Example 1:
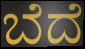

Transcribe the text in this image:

ಬೆದೆ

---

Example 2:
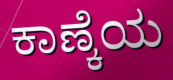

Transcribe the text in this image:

ಕಾಣ್ಕೆಯ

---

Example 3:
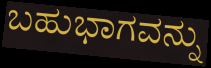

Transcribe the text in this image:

ಬಹುಭಾಗವನ್ನು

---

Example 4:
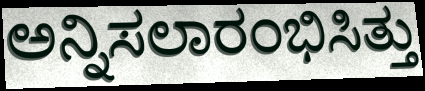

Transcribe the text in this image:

ಅನ್ನಿಸಲಾರಂಭಿಸಿತ್ತು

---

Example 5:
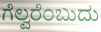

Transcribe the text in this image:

ಗೆಲ್ವರೆಂಬುದು